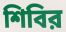
শিবির